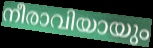
നീരാവിയായും